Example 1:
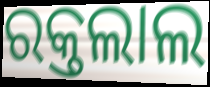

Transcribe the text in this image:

ରକ୍ତଲାଲ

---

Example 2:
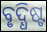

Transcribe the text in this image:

ବୃଦ୍ଧିଷ୍ଟ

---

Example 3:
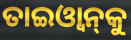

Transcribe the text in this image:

ତାଇଓ୍ବାନ୍‌କୁ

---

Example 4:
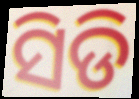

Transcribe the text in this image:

ସିଡି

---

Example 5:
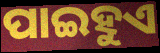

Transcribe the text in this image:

ପାଇହୁଏ